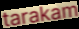
tarakam